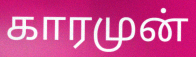
காரமுன்